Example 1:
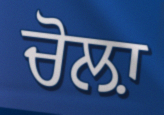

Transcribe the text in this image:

ਚੋਲ਼ਾ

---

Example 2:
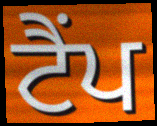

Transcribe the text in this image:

ਟੈਂਪ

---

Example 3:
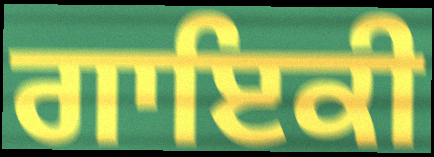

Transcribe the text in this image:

ਗਾਇਕੀ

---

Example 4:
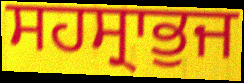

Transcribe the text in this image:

ਸਹਸ੍ਰਾਭੁਜ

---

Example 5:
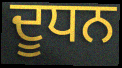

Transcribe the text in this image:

ਦੂਧਨ